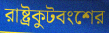
রাষ্ট্রকুটবংশের